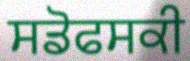
ਸਡੋਫਸਕੀ